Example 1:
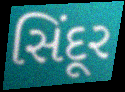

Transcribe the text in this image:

સિંદૂર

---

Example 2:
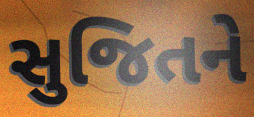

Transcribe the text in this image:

સુજિતને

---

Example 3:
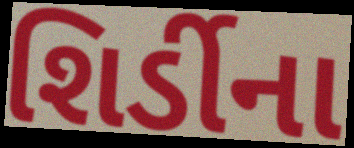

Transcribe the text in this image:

શિર્ડીના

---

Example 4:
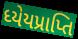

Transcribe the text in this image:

ધ્યેયપ્રાપ્તિ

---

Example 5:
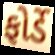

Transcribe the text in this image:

ફોર્ડે